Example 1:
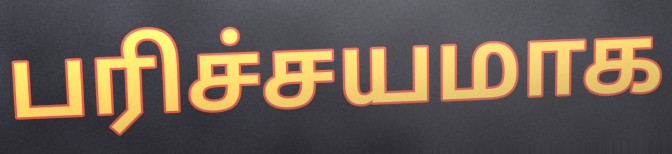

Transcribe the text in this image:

பரிச்சயமாக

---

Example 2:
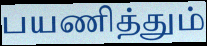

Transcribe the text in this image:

பயணித்தும்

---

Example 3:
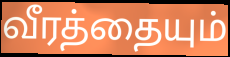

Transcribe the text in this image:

வீரத்தையும்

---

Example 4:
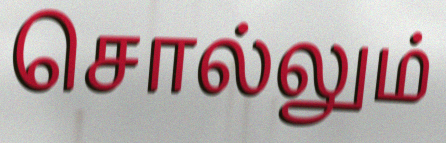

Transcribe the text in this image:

சொல்லும்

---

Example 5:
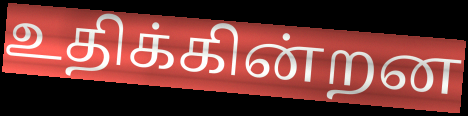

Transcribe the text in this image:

உதிக்கின்றன